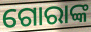
ଗୋରାଙ୍କ